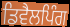
ਡਿਵੈਲਪਿੰਗ